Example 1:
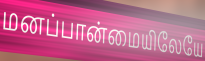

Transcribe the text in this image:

மனப்பான்மையிலேயே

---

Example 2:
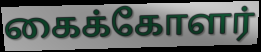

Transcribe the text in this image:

கைக்கோளர்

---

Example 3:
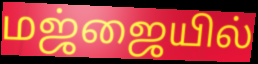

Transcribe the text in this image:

மஜ்ஜையில்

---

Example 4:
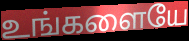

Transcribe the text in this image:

உங்களையே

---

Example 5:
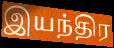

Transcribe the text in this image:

இயந்திர